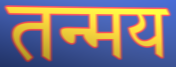
तन्‍मय